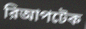
রিআপটেক